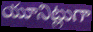
యూనిట్లుగా